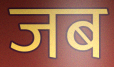
जब